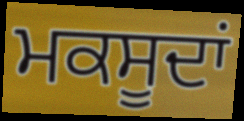
ਮਕਸੂਦਾਂ